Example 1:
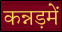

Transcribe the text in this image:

कन्नड़में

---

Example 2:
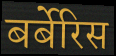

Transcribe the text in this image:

बर्बेरिस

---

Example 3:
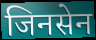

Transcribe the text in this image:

जिनसेन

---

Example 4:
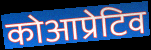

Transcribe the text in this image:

कोआप्रेटिव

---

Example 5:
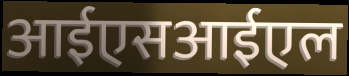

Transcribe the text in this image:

आईएसआईएल